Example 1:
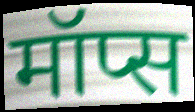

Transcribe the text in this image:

मॉप्स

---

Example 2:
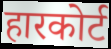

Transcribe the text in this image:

हारकोर्ट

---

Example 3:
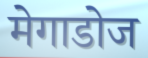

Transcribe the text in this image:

मेगाडोज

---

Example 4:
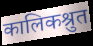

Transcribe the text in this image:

कालिकश्रुत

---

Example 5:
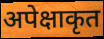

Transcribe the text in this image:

अपेक्षाकृत